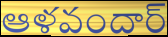
ఆళవందార్